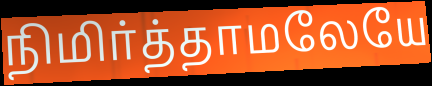
நிமிர்த்தாமலேயே